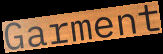
Garment